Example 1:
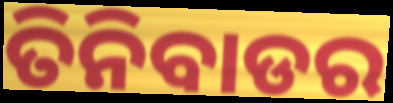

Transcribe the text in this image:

ତିନିବାଡର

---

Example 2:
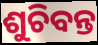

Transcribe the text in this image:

ଶୁଚିବନ୍ତ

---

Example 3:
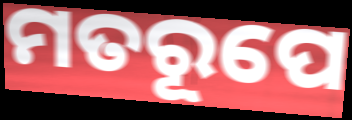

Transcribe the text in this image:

ମତରୂପେ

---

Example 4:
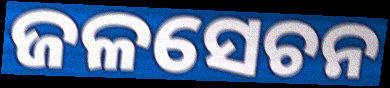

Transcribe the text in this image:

ଜଳସେଚନ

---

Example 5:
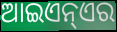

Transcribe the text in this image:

ଆଇଏନ୍ଏର